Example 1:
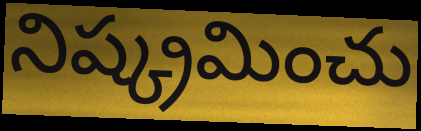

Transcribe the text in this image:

నిష్క్రమించు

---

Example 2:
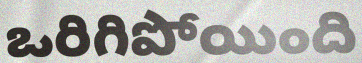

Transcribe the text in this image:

ఒరిగిపోయింది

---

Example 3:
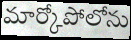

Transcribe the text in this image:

మార్కోపోలోను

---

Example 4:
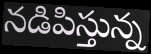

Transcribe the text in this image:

నడిపిస్తున్న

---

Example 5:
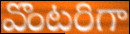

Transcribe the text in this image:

వొంటరిగా